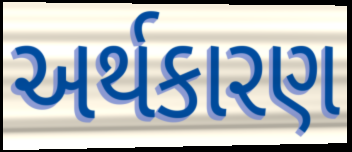
અર્થકારણ